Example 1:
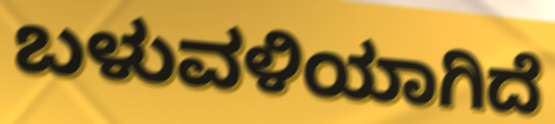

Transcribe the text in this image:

ಬಳುವಳಿಯಾಗಿದೆ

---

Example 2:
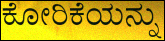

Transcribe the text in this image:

ಕೋರಿಕೆಯನ್ನು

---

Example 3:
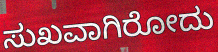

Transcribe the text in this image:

ಸುಖವಾಗಿರೋದು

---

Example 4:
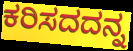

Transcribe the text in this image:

ಕರಿಸದದನ್ನ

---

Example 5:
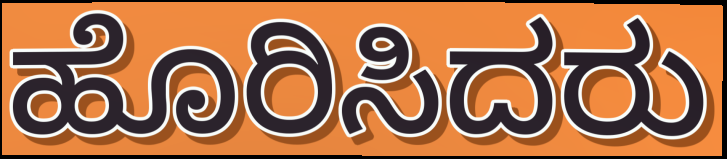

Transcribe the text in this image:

ಹೊರಿಸಿದರು